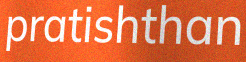
pratishthan